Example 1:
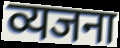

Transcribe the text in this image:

व्यजना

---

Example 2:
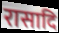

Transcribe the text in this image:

रासादि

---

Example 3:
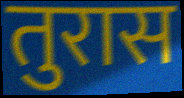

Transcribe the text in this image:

तुरास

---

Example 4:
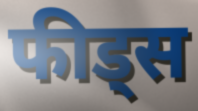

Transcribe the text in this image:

फीड्स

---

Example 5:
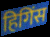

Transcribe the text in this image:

हिगिंस